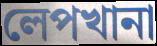
লেপখানা